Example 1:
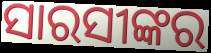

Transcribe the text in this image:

ସାରସୀଙ୍କର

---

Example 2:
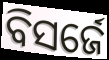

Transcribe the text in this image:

ବିସର୍ଜେ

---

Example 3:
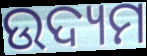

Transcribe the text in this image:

ଉଦ୍ୟମ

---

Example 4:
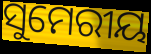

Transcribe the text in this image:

ସୁମେରୀୟ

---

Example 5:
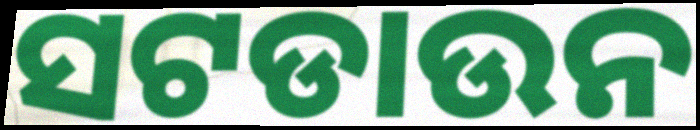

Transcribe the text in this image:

ସଟଡାଉନ